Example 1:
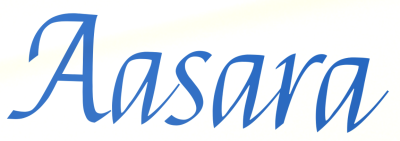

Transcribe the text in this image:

Aasara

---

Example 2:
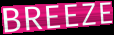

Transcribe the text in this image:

BREEZE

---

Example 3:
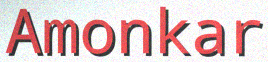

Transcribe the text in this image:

Amonkar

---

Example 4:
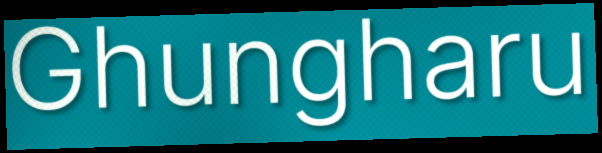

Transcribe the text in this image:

Ghungharu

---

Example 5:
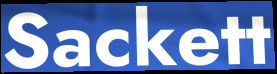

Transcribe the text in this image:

Sackett